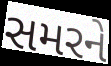
સમરને